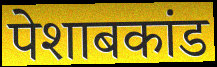
पेशाबकांड